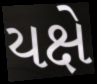
યક્ષે